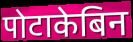
पोटाकेबिन